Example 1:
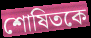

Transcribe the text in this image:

শোষিতকে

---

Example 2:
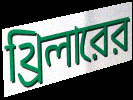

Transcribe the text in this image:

থ্রিলারের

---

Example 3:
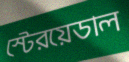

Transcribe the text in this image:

স্টেরয়েডাল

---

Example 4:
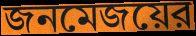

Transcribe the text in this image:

জনমেজয়ের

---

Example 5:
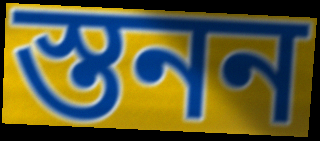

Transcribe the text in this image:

স্তনন